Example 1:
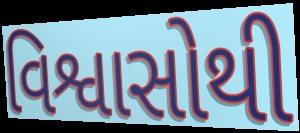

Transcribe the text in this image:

વિશ્વાસોથી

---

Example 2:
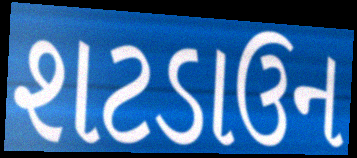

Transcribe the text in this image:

શટડાઉન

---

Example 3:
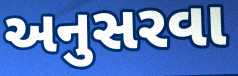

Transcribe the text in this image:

અનુસરવા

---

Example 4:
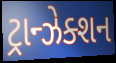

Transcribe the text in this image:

ટ્રાન્ઝેક્શન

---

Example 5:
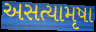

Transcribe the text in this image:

અસત્યામૃષા